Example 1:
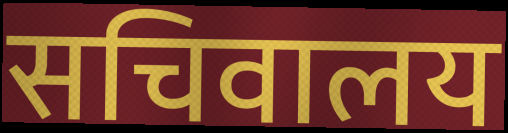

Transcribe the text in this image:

सचिवालय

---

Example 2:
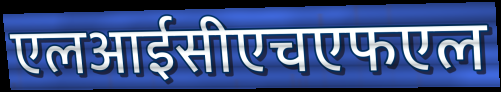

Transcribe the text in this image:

एलआईसीएचएफएल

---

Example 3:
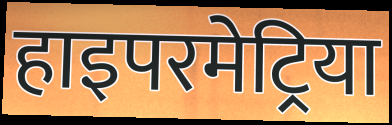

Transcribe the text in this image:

हाइपरमेट्रिया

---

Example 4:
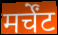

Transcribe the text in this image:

मर्चेंट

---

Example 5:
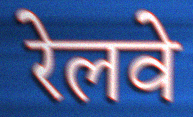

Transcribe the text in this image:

रेलवे